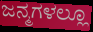
ಜನ್ಮಗಳಲ್ಲೂ